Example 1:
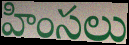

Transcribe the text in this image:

హింసలు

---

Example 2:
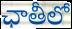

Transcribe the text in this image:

ఛాతీలో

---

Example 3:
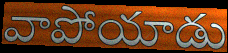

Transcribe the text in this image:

వాపోయాడు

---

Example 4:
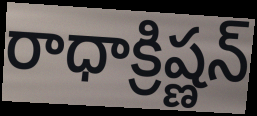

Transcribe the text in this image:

రాధాక్రిష్ణన్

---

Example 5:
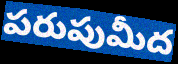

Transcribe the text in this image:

పరుపుమీద